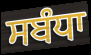
ਸਬੰਧਾ